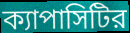
ক্যাপাসিটির